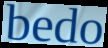
bedo